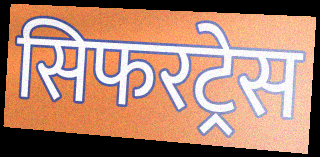
सिफरट्रेस